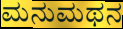
ಮನುಮಥನ